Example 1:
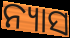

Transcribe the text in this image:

ନ୍ୟାସ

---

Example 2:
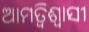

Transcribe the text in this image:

ଆମତ୍ବିଶ୍ୱାସୀ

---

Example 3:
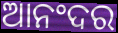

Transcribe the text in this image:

ଆନଂଦର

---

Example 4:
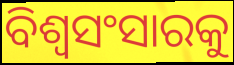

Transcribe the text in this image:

ବିଶ୍ୱସଂସାରକୁ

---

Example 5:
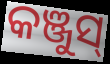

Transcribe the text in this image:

କଞ୍ଜୁସ୍